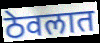
ठेवलात